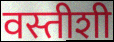
वस्‍तीशी